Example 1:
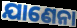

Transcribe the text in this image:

ଯାଣେନା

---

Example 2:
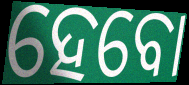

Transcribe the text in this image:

ହେବୋ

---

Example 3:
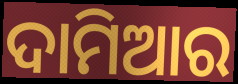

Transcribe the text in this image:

ଦାମିଆର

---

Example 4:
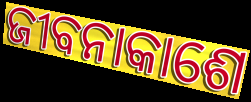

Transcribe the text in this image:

ଜୀବନାକାଶେ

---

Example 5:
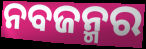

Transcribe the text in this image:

ନବଜନ୍ମର